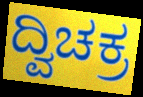
ದ್ವಿಚಕ್ರ